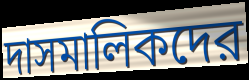
দাসমালিকদের